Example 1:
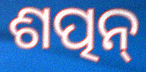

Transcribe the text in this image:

ଶତ୍ପନ୍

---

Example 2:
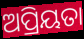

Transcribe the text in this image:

ଅପ୍ରିୟତା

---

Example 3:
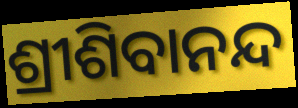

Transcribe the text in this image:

ଶ୍ରୀଶିବାନନ୍ଦ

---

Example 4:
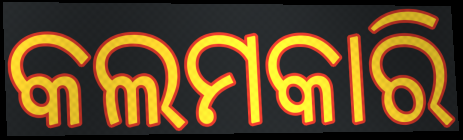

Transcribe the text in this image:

କଲମକାରି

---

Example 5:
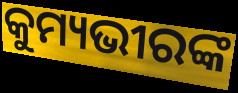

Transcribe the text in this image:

କୁମ୍ୟଭୀରଙ୍କ